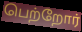
பெற்றோர்